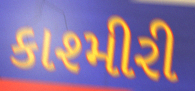
કાશ્મીરી